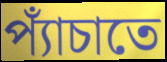
প্যাঁচাতে